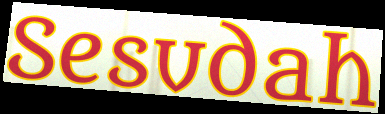
Sesudah